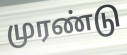
முரண்டு